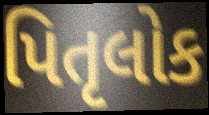
પિતૃલોક